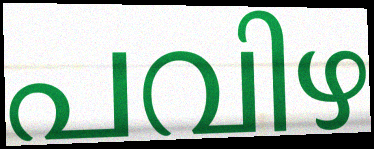
പവിഴ